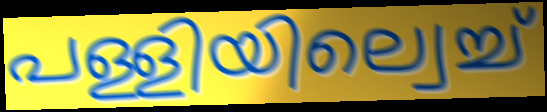
പള്ളിയില്വെച്ച്